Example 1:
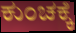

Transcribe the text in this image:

ಕುಂಚಕ್ಕೆ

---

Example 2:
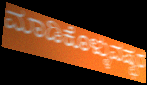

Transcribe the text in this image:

ಮಾಡಿಕೊಳ್ಳುವಷ್ಟರ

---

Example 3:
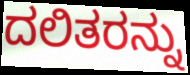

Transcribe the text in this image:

ದಲಿತರನ್ನು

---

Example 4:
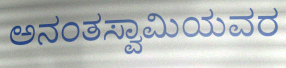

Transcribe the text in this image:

ಅನಂತಸ್ವಾಮಿಯವರ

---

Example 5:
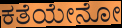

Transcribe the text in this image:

ಕತೆಯೇನೋ